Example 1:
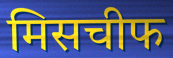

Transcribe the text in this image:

मिसचीफ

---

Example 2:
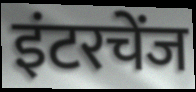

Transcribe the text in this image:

इंटरचेंज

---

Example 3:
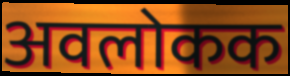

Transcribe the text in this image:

अवलोकक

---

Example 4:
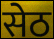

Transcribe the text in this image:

सेठ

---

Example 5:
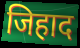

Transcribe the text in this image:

जिहाद